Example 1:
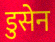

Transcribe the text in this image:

डुसेन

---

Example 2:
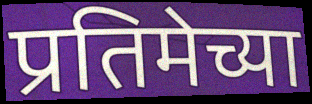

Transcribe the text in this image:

प्रतिमेच्या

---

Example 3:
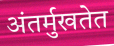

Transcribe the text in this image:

अंतर्मुखतेत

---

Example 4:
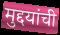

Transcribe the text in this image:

मुद्दयांची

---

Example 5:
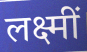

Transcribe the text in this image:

लक्ष्मीं